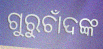
ଗୁରୁଚାଁଦଙ୍କ